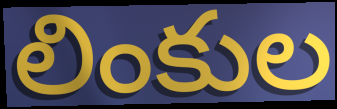
లింకుల